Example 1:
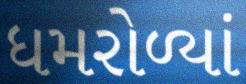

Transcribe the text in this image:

ધમરોળ્યાં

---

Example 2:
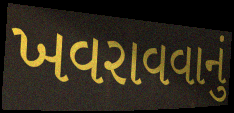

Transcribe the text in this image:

ખવરાવવાનું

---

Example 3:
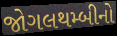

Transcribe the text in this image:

જોગલથમ્બીનો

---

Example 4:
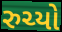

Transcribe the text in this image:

રુચ્યો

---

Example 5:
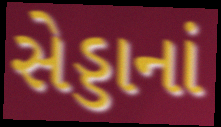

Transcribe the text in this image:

સેડ્ડાનાં